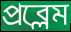
প্ৰব্লেম